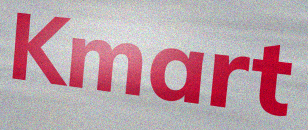
Kmart